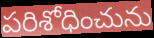
పరిశోధించును